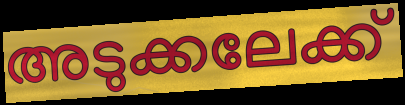
അടുക്കലേക്ക്